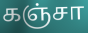
கஞ்சா